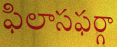
ఫిలాసఫర్గా